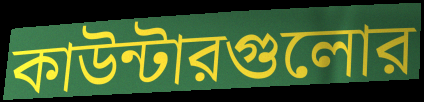
কাউন্টারগুলোর